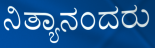
ನಿತ್ಯಾನಂದರು